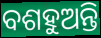
ବଶହୁଅନ୍ତି